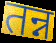
तन्न